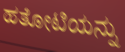
ಹತೋಟಿಯನ್ನು